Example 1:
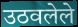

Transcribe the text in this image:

उठवलेले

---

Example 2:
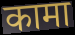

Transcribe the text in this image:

कामा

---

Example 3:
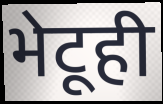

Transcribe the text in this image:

भेटूही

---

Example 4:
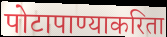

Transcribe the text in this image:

पोटापाण्याकरिता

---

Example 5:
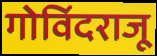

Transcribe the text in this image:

गोविंदराजू